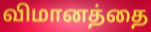
விமானத்தை